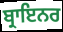
ਬ੍ਰਾਇਨਰ